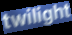
twilight